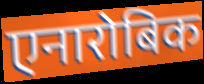
एनारोबिक